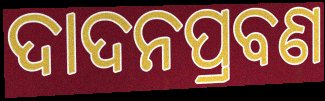
ଦାଦନପ୍ରବଣ